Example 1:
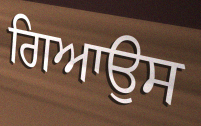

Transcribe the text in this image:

ਗਿਆਉਸ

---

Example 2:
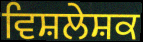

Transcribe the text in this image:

ਵਿਸ਼ਲੇਸ਼ਕ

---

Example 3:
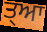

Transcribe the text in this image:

ਤ੍ਆ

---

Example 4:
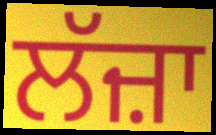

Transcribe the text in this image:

ਲੱਜ਼ਾ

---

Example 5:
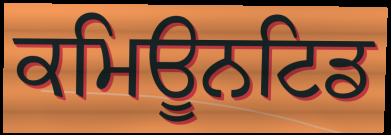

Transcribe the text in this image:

ਕਮਿਊਨਟਿਡ